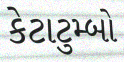
કેટાટુમ્બો